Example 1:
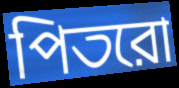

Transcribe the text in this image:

পিতরো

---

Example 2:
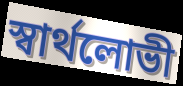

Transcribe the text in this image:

স্বার্থলোভী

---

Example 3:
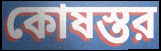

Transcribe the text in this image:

কোষস্তর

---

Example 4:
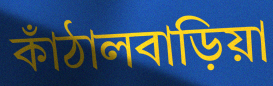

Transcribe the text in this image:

কাঁঠালবাড়িয়া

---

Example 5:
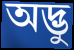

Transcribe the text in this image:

অদ্ভু